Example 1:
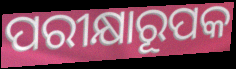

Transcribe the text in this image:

ପରୀକ୍ଷାରୂପକ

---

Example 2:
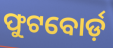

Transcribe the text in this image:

ଫୁଟବୋର୍ଡ଼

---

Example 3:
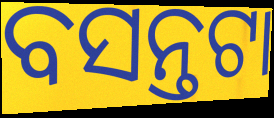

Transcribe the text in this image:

ବସନ୍ତଟା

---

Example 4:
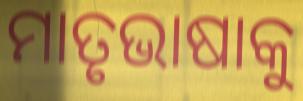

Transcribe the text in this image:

ମାତୃଭାଷାକୁ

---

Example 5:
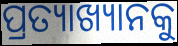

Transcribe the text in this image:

ପ୍ରତ୍ୟାଖ୍ୟାନକୁ